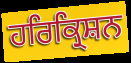
ਹਰਿਕ੍ਰਿਸ਼ਨ